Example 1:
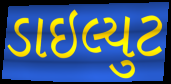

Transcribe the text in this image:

ડાઇલ્યુટ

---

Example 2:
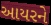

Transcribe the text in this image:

આયરને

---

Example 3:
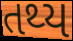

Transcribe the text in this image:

તથ્ય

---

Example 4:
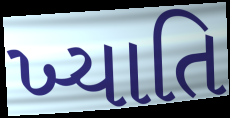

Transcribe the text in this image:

ખ્યાતિ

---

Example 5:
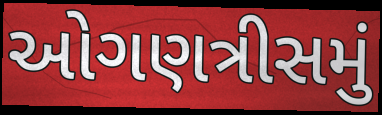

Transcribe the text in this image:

ઓગણત્રીસમું